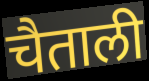
चैताली